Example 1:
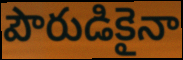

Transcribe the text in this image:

పౌరుడికైనా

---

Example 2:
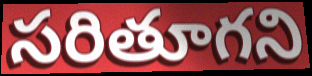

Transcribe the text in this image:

సరితూగని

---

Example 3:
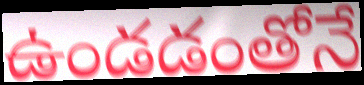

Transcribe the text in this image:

ఉండడంతోనే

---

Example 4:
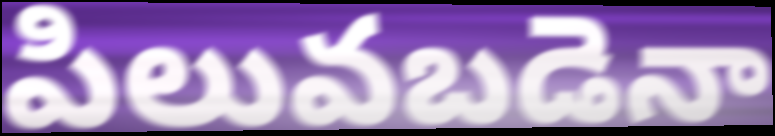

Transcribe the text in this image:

పిలువబడెనా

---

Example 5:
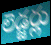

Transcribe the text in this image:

లెడ్జర్లు